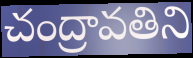
చంద్రావతిని